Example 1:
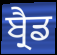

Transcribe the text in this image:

ਬ੍ਰੈਡ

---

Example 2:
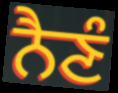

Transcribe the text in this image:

ਨੈਣੰ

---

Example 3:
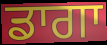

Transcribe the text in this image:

ਡਾਗਾ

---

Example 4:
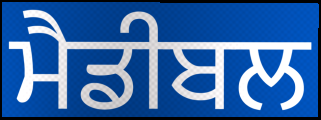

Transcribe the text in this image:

ਮੈਡੀਬਲ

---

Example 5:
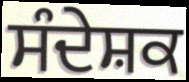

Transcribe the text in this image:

ਸੰਦੇਸ਼ਕ